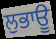
ਲੁਭਾਊ